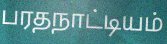
பரதநாட்டியம்